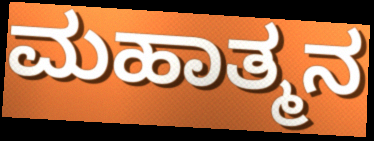
ಮಹಾತ್ಮನ